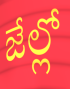
జేల్లో